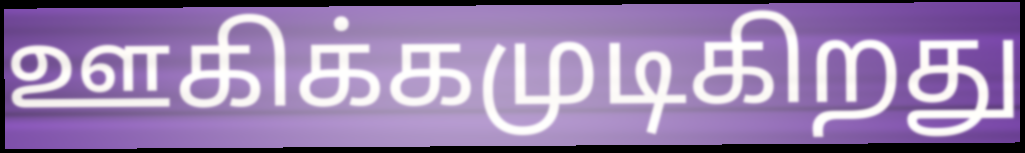
ஊகிக்கமுடிகிறது